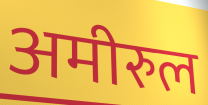
अमीरुल